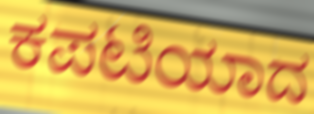
ಕಪಟಿಯಾದ